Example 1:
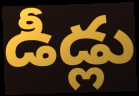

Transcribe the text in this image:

డీడ్లు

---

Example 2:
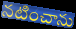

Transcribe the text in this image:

నటించాను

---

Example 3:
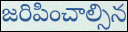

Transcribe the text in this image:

జరిపించాల్సిన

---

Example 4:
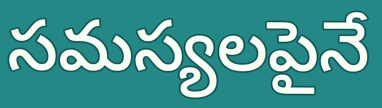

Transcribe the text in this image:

సమస్యలపైనే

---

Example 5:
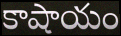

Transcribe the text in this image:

కాషాయం